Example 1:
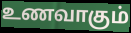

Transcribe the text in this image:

உணவாகும்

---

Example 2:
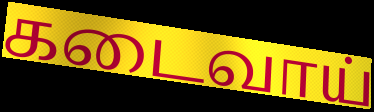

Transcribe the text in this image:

கடைவாய்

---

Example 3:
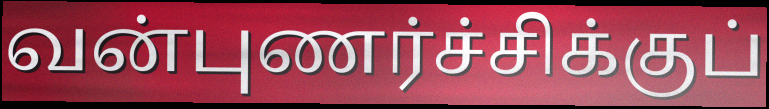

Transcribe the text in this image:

வன்புணர்ச்சிக்குப்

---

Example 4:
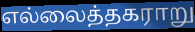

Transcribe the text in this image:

எல்லைத்தகராறு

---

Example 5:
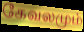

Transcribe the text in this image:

கேவலமும்